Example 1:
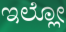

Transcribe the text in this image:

ಇಲ್ಲೋ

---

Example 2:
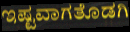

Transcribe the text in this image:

ಇಷ್ಟವಾಗತೊಡಗಿ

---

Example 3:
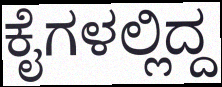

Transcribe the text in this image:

ಕೈಗಳಲ್ಲಿದ್ದ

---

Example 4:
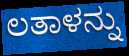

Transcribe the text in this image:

ಲತಾಳನ್ನು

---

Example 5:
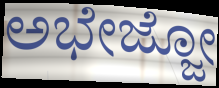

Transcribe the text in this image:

ಅಭೇಜ್ಜೋ